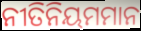
ନୀତିନିୟମମାନ